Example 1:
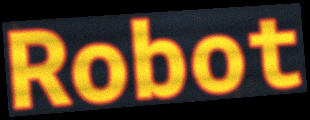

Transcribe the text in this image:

Robot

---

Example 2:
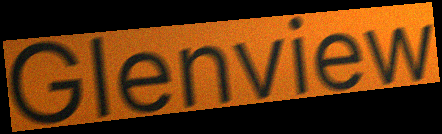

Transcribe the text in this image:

Glenview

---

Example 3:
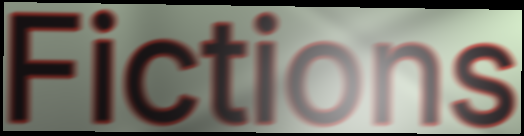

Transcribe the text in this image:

Fictions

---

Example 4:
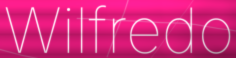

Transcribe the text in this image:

Wilfredo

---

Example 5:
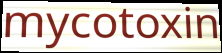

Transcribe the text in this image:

mycotoxin